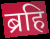
ब्रहि